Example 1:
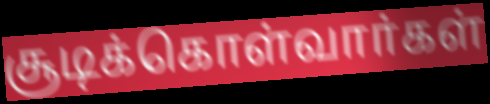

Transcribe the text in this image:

சூடிக்கொள்வார்கள்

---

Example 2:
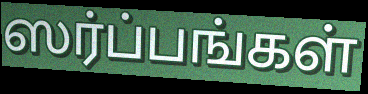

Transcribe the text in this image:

ஸர்ப்பங்கள்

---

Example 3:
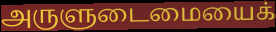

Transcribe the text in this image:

அருளுடைமையைக்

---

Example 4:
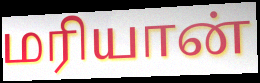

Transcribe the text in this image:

மரியான்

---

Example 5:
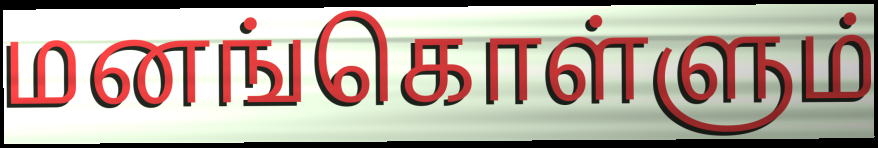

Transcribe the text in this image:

மனங்கொள்ளும்